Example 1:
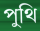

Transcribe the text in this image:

পুথি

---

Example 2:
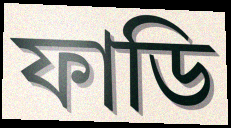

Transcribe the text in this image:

ফাডি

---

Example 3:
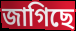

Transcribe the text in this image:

জাগিছে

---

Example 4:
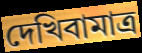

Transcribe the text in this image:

দেখিবামাত্র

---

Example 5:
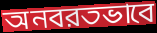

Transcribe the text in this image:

অনবরতভাবে